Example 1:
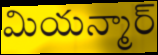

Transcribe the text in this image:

మియన్మార్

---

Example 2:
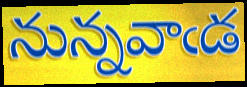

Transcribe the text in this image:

నున్నవాఁడ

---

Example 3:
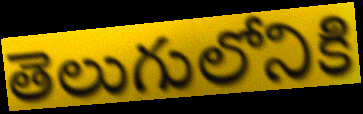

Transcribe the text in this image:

తెలుగులోనికి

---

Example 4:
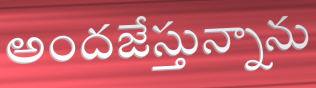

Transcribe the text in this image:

అందజేస్తున్నాను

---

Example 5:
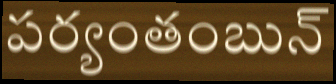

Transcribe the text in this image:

పర్యంతంబున్